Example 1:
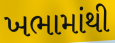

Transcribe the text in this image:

ખભામાંથી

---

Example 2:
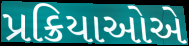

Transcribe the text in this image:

પ્રક્રિયાઓએ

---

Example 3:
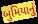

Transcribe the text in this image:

બુમિયાનું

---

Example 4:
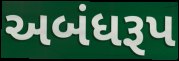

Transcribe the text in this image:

અબંધરૂપ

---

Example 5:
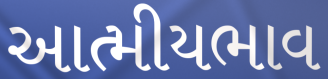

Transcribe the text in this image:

આત્મીયભાવ